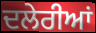
ਦਲੇਰੀਆਂ